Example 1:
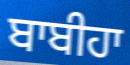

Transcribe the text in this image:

ਬਾਬੀਹਾ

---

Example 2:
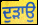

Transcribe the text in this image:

ਦੁੜਾਉ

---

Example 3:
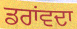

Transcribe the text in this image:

ਡਰਾਂਵਦਾ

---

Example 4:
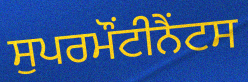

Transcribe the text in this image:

ਸੁਪਰਮੌਂਟੀਨੈਂਟਸ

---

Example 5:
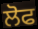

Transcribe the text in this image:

ਲੋਫ